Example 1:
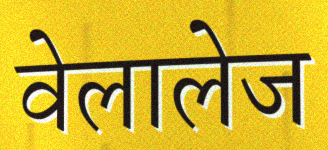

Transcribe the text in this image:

वेलालेज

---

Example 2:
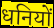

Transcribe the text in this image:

धनियों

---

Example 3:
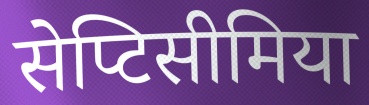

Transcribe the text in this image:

सेप्टिसीमिया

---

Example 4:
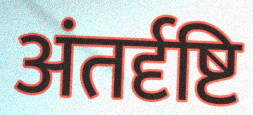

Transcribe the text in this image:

अंतर्दृष्टि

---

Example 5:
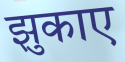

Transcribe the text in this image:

झुकाए